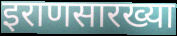
इराणसारख्या